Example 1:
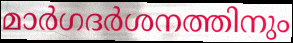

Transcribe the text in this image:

മാർഗദർശനത്തിനും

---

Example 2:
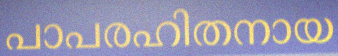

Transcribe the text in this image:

പാപരഹിതനായ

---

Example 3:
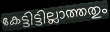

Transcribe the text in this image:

കേട്ടിട്ടില്ലാത്തതും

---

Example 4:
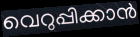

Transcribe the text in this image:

വെറുപ്പിക്കാൻ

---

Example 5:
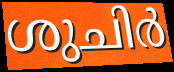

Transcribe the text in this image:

ശുചിർ